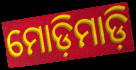
ମୋଡ଼ିମାଡ଼ି